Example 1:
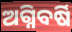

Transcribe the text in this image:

ଅଗ୍ନିବର୍ଷି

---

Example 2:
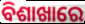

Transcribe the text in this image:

ବିଶାଖାରେ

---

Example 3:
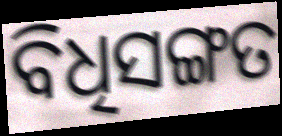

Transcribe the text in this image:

ବିଧିସଙ୍ଗତ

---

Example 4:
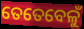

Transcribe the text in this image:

ତେତେବେଳୁଁ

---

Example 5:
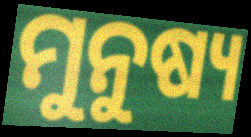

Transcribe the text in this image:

ମୁନୁଷ୍ୟ